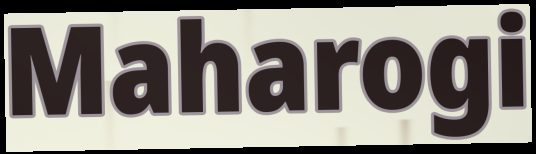
Maharogi